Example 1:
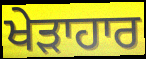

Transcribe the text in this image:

ਖੇੜਾਹਾਰ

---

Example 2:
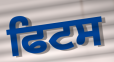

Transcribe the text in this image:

ਫਿਟਸ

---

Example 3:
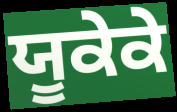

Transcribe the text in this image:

ਯੂਕੇਕੇ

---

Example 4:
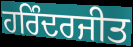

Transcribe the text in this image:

ਹਰਿੰਦਰਜੀਤ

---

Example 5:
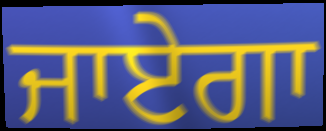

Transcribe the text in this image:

ਜਾਏਗਾ